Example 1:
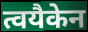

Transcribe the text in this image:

त्वयैकेन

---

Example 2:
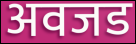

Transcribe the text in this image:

अवजड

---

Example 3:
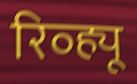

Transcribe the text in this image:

रिव्ह्यू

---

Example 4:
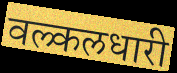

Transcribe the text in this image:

वल्कलधारी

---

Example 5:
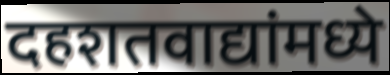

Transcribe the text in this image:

दहशतवाद्यांमध्ये